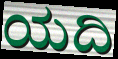
ಯದಿ